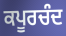
ਕਪੂਰਚੰਦ